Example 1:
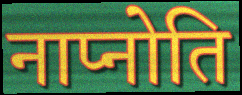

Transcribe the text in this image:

नाप्नोति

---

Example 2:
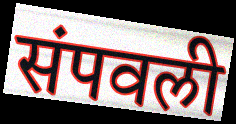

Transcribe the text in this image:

संपवली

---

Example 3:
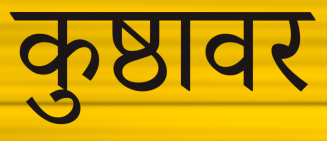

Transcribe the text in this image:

कुष्ठावर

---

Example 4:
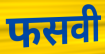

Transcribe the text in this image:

फसवी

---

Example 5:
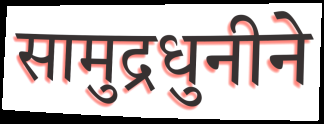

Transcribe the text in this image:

सामुद्रधुनीने